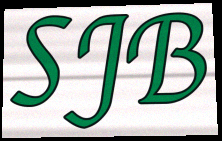
SJB